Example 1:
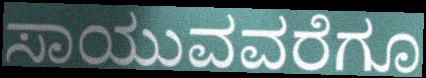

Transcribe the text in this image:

ಸಾಯುವವರೆಗೂ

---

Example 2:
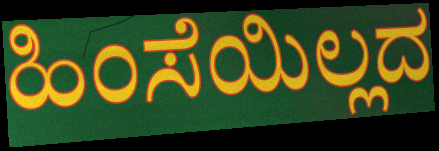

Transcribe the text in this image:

ಹಿಂಸೆಯಿಲ್ಲದ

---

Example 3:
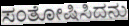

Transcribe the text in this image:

ಸಂತೋಷಿಸಿದನು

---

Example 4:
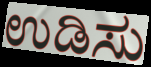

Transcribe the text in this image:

ಉಡಿಸು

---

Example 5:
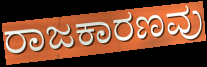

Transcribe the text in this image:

ರಾಜಕಾರಣವು